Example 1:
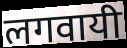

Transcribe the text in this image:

लगवायी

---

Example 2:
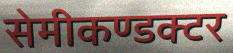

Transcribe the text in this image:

सेमीकण्डक्टर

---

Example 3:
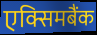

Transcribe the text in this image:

एक्सिमबैंक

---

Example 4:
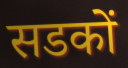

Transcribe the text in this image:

सडकों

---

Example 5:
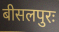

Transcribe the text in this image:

बीसलपुरः